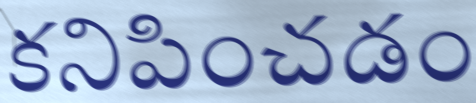
కనిపించడం